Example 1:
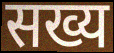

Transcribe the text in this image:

सख्य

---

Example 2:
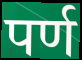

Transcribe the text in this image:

पर्ण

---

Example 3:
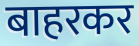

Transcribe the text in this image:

बाहरकर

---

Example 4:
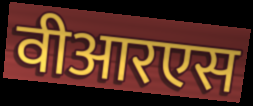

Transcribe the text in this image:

वीआरएस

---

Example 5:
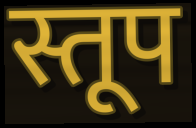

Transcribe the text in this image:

स्तूप